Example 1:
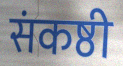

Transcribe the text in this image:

संकष्ठी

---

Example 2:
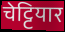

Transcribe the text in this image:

चेट्टियार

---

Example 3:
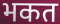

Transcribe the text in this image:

भकत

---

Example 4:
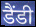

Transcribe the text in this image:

डैंडी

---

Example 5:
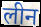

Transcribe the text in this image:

लीन